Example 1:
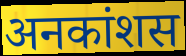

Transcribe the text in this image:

अनकांशस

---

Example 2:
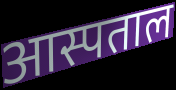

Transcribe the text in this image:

आस्पताल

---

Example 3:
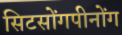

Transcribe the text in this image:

सिटसोंगपीनोंग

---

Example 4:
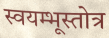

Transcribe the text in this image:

स्वयम्भूस्तोत्र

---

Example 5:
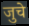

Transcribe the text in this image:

जुचे